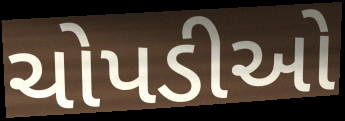
ચોપડીઓ